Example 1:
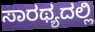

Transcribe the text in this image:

ಸಾರಥ್ಯದಲ್ಲಿ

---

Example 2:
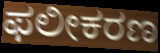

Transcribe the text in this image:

ಫಲೀಕರಣ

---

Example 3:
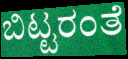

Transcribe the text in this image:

ಬಿಟ್ಟರಂತೆ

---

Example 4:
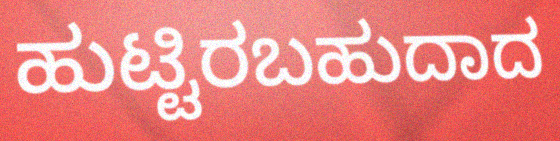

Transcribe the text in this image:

ಹುಟ್ಟಿರಬಹುದಾದ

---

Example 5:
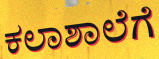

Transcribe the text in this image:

ಕಲಾಶಾಲೆಗೆ